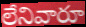
లేనివారూ